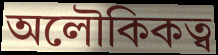
অলৌকিকত্ব